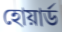
হোয়ার্ড